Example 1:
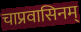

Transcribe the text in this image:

चाप्रवासिनम्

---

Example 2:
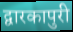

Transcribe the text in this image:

द्वारकापुरी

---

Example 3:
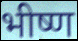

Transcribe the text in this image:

भीष्ण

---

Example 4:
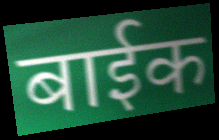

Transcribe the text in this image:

बाईक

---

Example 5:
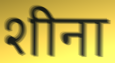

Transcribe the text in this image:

शीना